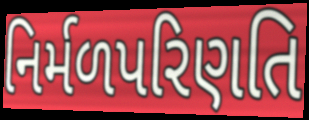
નિર્મળપરિણતિ